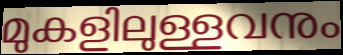
മുകളിലുള്ളവനും